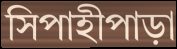
সিপাহীপাড়া